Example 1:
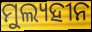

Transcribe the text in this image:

ମୁଲ୍ୟହୀନ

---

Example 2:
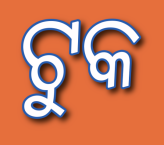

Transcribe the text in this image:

ଟୁକ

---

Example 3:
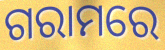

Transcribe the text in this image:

ଗରାମରେ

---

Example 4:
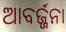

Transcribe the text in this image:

ଆବର୍ଜ୍ଜନା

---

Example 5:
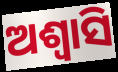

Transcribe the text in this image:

ଅଶ୍ୱାସି